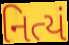
નિત્યં